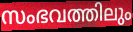
സംഭവത്തിലും